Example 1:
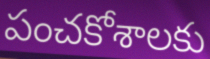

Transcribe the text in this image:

పంచకోశాలకు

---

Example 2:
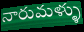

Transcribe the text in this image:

నారుమళ్ళు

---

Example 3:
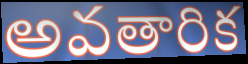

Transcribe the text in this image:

అవతారిక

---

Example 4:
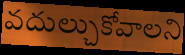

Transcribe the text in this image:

వదుల్చుకోవాలని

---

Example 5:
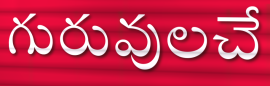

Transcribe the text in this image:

గురువులచే